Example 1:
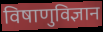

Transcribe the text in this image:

विषाणुविज्ञान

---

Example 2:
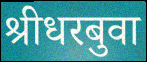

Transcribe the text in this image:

श्रीधरबुवा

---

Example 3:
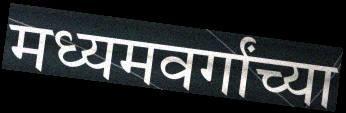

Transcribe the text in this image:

मध्यमवर्गांच्या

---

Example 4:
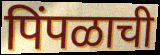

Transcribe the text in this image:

पिंपळाची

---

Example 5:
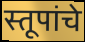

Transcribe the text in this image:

स्तूपांचे